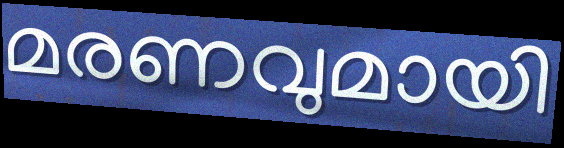
മരണവുമായി